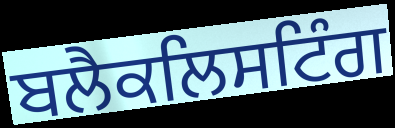
ਬਲੈਕਲਿਸਟਿੰਗ